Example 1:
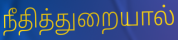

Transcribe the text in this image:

நீதித்துறையால்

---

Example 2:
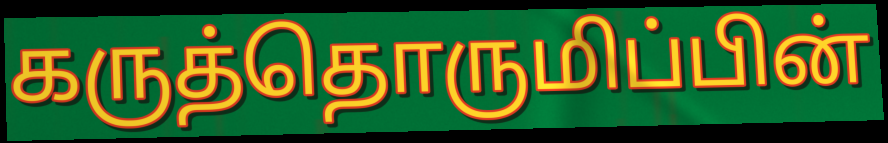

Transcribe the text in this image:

கருத்தொருமிப்பின்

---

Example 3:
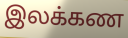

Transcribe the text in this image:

இலக்கண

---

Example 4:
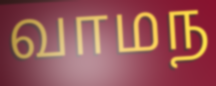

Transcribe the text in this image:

வாமந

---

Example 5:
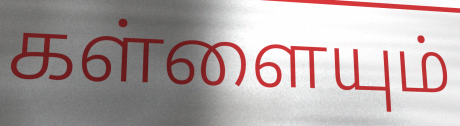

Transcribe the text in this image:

கள்ளையும்